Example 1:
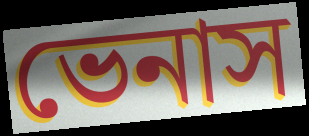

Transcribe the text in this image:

ভেনাস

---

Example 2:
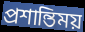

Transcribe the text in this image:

প্রশান্তিময়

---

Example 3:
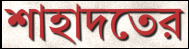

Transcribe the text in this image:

শাহাদতের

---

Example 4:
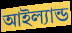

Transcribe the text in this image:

আইল্যান্ড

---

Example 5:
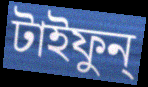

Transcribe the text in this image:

টাইফুন্